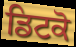
ਡਿਟਕੋ